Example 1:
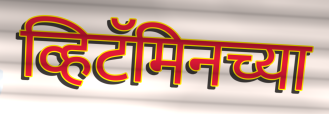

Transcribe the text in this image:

व्हिटॅमिनच्या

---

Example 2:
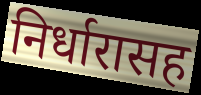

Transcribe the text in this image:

निर्धारासह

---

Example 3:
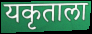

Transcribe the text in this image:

यकृताला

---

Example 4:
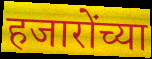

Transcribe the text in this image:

हजारोंच्या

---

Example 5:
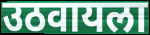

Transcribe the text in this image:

उठवायला